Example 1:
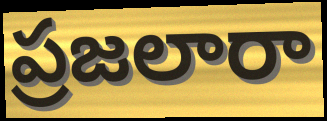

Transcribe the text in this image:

ప్రజలారా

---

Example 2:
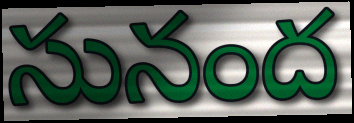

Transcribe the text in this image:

సునంద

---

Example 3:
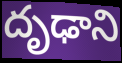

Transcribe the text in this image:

దృఢాని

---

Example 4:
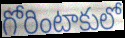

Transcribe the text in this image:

గోరింటాకులో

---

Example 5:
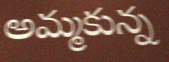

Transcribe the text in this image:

అమ్మకున్న